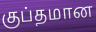
குப்தமான